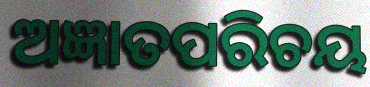
ଅଜ୍ଞାତପରିଚୟ